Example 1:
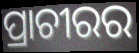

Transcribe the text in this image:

ପ୍ରାଚୀରର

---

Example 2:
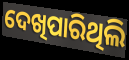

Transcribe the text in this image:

ଦେଖିପାରିଥିଲି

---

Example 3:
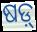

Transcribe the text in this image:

ଷଡ଼୍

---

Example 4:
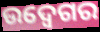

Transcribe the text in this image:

ଉଦ୍ବେଗର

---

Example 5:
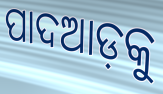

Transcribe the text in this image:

ପାଦଆଡ଼କୁ